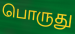
பொருது